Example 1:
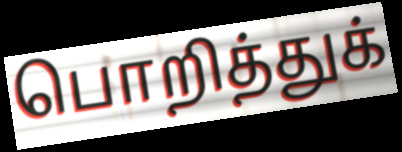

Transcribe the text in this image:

பொறித்துக்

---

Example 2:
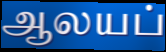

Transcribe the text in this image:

ஆலயப்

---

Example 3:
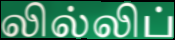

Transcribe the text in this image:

லில்லிப்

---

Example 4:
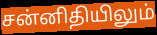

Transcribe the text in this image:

சன்னிதியிலும்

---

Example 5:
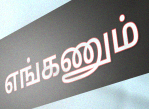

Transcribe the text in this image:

எங்கணும்